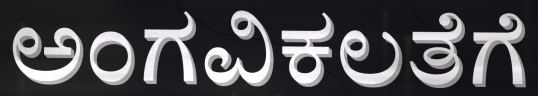
ಅಂಗವಿಕಲತೆಗೆ